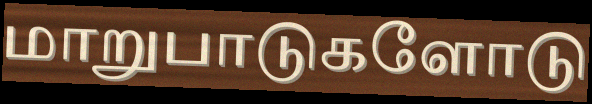
மாறுபாடுகளோடு